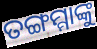
ତଙ୍ଗମ୍ମାଙ୍କୁ